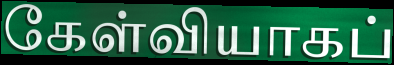
கேள்வியாகப்